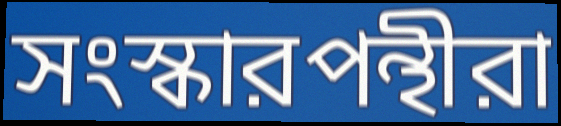
সংস্কারপন্থীরা